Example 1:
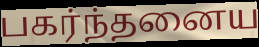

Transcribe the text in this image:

பகர்ந்தனைய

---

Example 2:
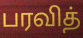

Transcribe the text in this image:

பரவித்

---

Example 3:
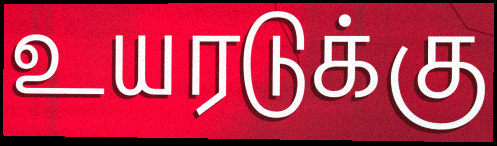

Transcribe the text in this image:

உயரடுக்கு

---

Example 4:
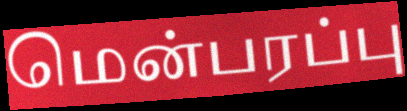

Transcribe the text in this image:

மென்பரப்பு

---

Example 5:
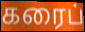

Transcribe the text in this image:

கரைப்